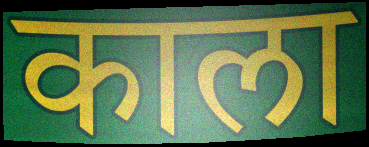
काला